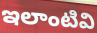
ఇలాంటివి